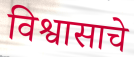
विश्वासाचे